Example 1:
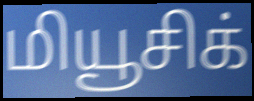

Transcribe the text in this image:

மியூசிக்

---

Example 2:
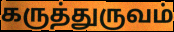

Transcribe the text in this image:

கருத்துருவம்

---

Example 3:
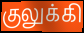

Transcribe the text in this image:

குலுக்கி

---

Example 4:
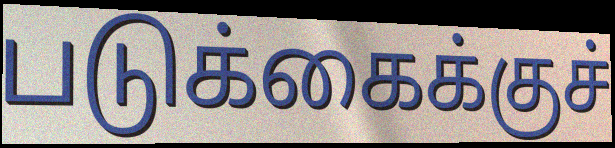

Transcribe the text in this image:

படுக்கைக்குச்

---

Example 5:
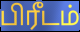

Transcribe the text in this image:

பிரீடம்